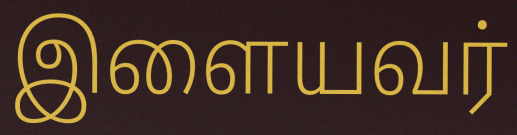
இளையவர்